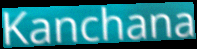
Kanchana